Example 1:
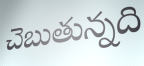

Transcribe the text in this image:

చెబుతున్నది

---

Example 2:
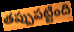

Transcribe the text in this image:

తప్పుపట్టింది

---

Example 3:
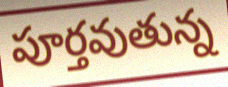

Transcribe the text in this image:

పూర్తవుతున్న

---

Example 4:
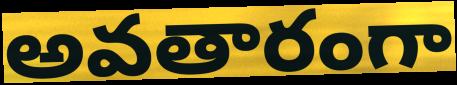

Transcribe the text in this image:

అవతారంగా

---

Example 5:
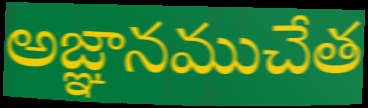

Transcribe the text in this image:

అజ్ఞానముచేత